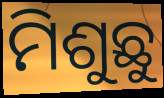
ମିଶୁଛୁ